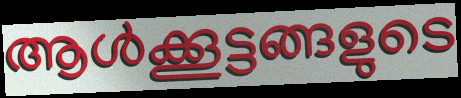
ആൾക്കൂട്ടങ്ങളുടെ